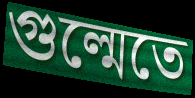
গুল্মেতে